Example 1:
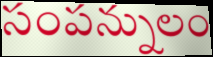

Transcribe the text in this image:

సంపన్నులం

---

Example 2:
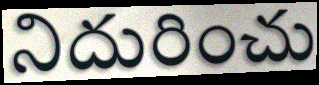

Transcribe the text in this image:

నిదురించు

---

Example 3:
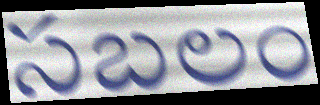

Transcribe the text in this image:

సబలం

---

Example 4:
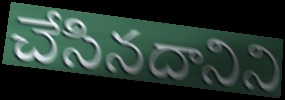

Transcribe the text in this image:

చేసినదానిని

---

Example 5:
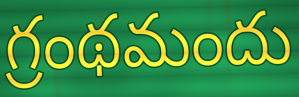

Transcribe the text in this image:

గ్రంథమందు